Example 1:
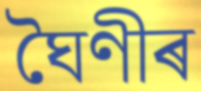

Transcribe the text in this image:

ঘৈণীৰ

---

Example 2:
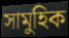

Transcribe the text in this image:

সামুহিক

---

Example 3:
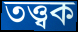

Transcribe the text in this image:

তত্ত্বক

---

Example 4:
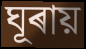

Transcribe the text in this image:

ঘূৰায়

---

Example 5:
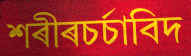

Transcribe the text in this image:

শৰীৰচৰ্চাবিদ